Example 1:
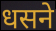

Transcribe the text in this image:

धसने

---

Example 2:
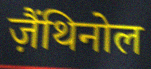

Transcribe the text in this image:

ज़ैंथिनोल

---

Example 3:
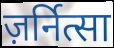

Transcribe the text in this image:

ज़र्नित्सा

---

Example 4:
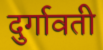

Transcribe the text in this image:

दुर्गावती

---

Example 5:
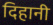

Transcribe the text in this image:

दिहानी